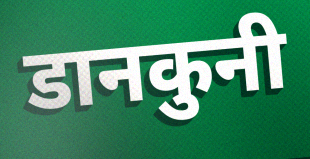
डानकुनी